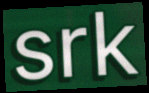
srk